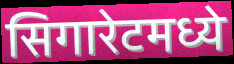
सिगारेटमध्ये